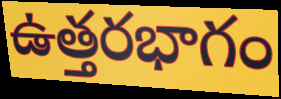
ఉత్తరభాగం